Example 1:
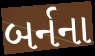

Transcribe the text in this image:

બર્નના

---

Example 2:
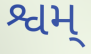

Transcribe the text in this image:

શ્વમ્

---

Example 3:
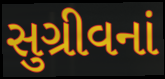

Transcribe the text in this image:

સુગ્રીવનાં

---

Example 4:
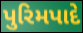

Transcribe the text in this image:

પુરિમપાદે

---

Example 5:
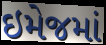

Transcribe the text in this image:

ઇમેજમાં